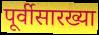
पूर्वीसारख्या